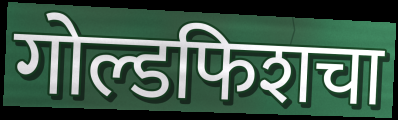
गोल्डफिशचा